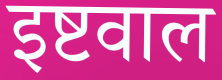
इष्टवाल